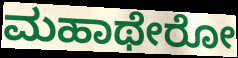
ಮಹಾಥೇರೋ